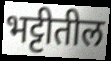
भट्टीतील